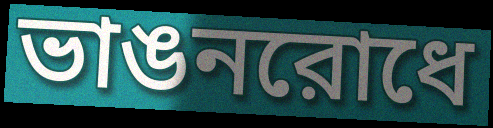
ভাঙনরোধে